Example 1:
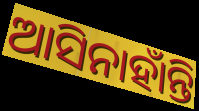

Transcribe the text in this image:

ଆସିନାହାଁନ୍ତି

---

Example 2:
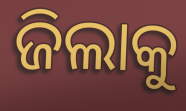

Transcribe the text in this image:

ଜିଲାକୁ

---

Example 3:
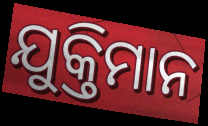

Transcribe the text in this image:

ଯୁକ୍ତିମାନ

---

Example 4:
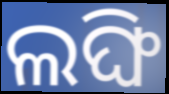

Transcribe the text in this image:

ଲଙ୍ଘି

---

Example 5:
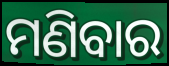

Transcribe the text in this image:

ମଣିବାର